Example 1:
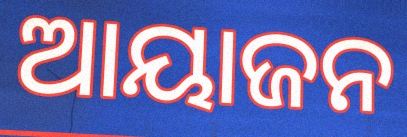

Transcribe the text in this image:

ଆୟାଜନ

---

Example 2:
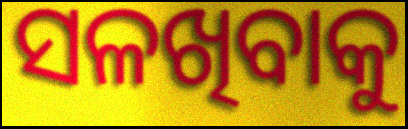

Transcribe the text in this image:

ସଳଖିବାକୁ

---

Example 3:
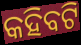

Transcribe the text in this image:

କହିବଟି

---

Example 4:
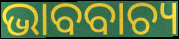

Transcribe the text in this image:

ଭାବବାଚ୍ୟ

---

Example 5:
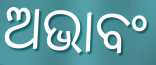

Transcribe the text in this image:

ଅଭାବଂ